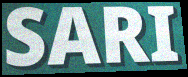
SARI